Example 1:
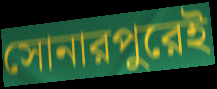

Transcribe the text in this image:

সোনারপুরেই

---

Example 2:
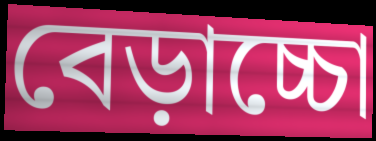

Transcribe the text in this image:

বেড়াচ্চো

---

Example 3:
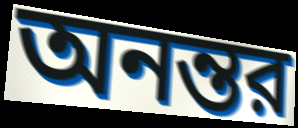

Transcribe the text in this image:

অনন্তর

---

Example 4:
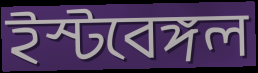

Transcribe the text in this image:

ইস্টবেঙ্গল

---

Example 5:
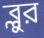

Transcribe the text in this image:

ব্লুর